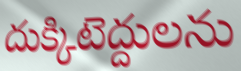
దుక్కిటెద్దులను